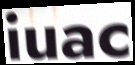
iuac